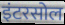
इंटरसोल